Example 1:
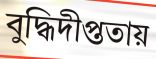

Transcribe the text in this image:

বুদ্ধিদীপ্ততায়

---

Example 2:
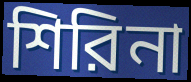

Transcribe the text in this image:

শিরিনা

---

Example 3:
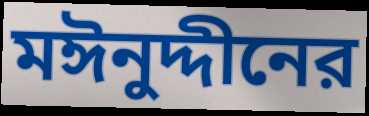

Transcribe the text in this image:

মঈনুদ্দীনের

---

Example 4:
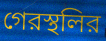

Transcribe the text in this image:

গেরস্থলির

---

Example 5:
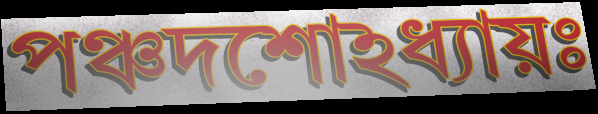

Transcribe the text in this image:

পঞ্চদশোঽধ্যায়ঃ